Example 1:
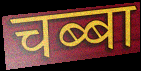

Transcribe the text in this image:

चब्बा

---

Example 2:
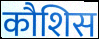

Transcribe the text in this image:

कौशिस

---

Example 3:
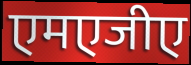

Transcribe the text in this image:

एमएजीए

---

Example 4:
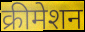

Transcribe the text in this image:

क्रीमेशन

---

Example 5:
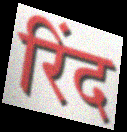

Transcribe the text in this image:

रिंद